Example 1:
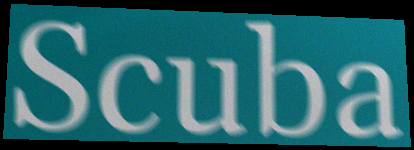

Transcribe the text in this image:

Scuba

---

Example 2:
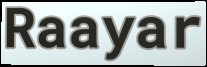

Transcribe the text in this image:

Raayar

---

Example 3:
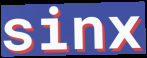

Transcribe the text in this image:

sinx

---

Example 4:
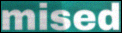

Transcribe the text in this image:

mised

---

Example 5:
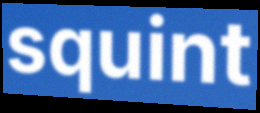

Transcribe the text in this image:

squint